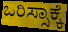
ಒರಿಸ್ಸಾಕ್ಕೆ